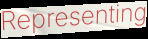
Representing